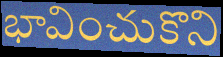
భావించుకొని